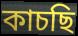
কাচছি